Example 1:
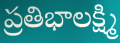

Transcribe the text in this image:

ప్రతిభాలక్ష్మి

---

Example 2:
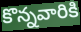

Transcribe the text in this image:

కొన్నవారికి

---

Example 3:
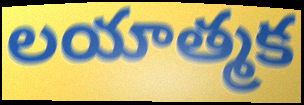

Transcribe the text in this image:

లయాత్మక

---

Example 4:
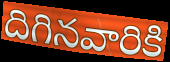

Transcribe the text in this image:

దిగినవారికి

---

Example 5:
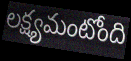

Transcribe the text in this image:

లక్ష్యమంటోంది